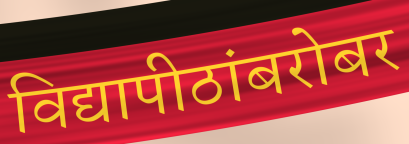
विद्यापीठांबरोबर